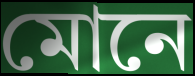
মোনে